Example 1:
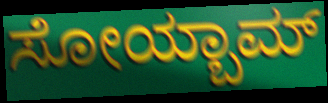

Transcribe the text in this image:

ಸೋಯ್ಬಾಮ್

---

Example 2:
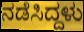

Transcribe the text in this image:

ನಡೆಸಿದ್ದಳು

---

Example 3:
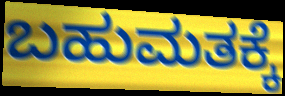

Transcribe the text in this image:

ಬಹುಮತಕ್ಕೆ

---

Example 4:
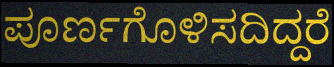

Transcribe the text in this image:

ಪೂರ್ಣಗೊಳಿಸದಿದ್ದರೆ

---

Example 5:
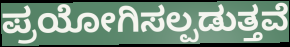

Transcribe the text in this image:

ಪ್ರಯೋಗಿಸಲ್ಪಡುತ್ತವೆ